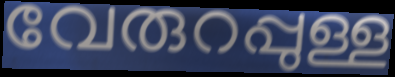
വേരുറപ്പുള്ള